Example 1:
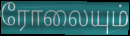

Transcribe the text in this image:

ரோலையும்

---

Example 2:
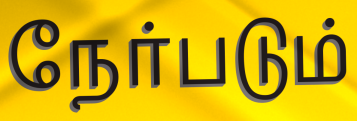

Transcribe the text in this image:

நேர்படும்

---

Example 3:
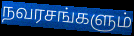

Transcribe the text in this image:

நவரசங்களும்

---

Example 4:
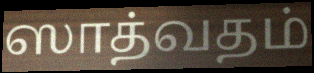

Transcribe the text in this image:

ஸாத்வதம்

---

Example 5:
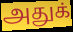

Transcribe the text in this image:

அதுக்